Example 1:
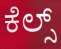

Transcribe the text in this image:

ಕೆಲ್ಸ್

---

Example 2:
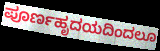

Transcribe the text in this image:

ಪೂರ್ಣಹೃದಯದಿಂದಲೂ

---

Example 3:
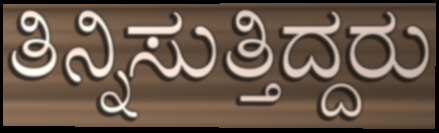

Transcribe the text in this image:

ತಿನ್ನಿಸುತ್ತಿದ್ದರು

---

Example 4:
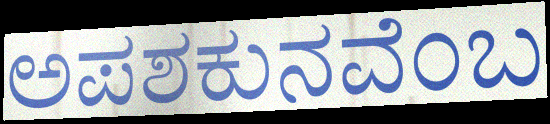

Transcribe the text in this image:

ಅಪಶಕುನವೆಂಬ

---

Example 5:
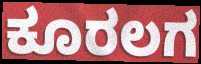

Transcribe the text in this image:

ಕೂರಲಗ